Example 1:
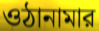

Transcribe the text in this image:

ওঠানামার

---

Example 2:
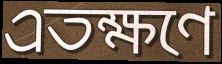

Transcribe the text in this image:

এতক্ষণে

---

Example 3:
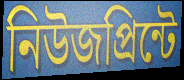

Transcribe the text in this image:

নিউজপ্রিন্টে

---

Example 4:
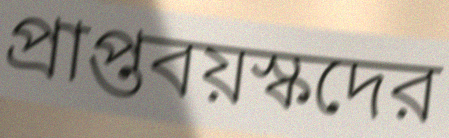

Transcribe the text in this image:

প্রাপ্তবয়স্কদের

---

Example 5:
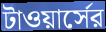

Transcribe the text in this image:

টাওয়ার্সের